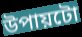
উপায়টো